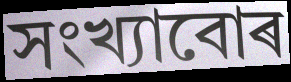
সংখ্যাবোৰ